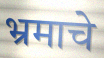
भ्रमाचे